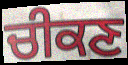
ਚੀਕਣ